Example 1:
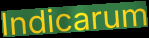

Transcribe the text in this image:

Indicarum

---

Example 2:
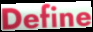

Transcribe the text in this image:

Define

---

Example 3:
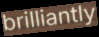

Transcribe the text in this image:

brilliantly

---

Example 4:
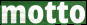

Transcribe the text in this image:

motto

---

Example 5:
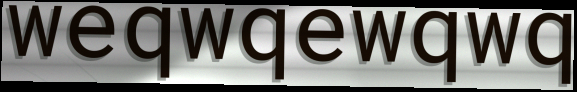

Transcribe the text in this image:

weqwqewqwq